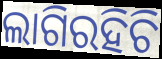
ଲାଗିରହିଚି